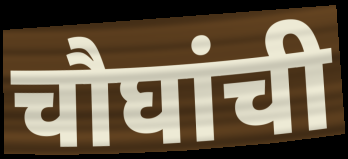
चौघांची